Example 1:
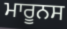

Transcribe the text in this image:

ਮਾਰੂਨਸ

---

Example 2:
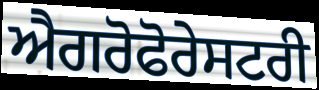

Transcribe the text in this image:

ਐਗਰੋਫੋਰੇਸਟਰੀ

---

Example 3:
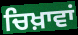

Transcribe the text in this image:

ਚਿਖ਼ਾਵਾਂ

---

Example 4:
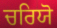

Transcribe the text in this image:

ਚਰਿਯੋ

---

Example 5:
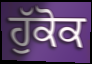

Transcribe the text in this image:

ਹੁੱਕੋਕ